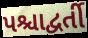
પશ્ચાદ્વર્તી